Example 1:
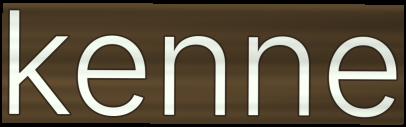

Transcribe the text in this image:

kenne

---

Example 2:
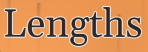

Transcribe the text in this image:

Lengths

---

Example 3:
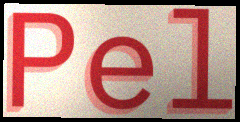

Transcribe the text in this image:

Pel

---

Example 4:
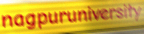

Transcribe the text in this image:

nagpuruniversity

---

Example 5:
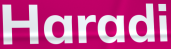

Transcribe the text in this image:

Haradi